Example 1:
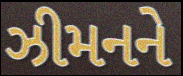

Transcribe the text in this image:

ઝીમનને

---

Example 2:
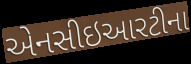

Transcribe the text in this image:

એનસીઇઆરટીના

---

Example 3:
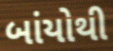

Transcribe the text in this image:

બાંયોથી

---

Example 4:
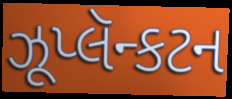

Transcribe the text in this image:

ઝૂપ્લૅન્કટન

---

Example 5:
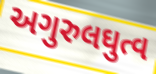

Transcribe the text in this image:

અગુરુલઘુત્વ